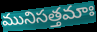
మునిసత్తమాః